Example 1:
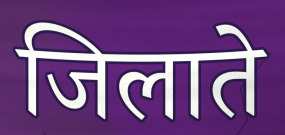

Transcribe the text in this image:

जिलाते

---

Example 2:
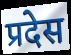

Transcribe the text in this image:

प्रदेस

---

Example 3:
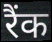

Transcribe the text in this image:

रैंक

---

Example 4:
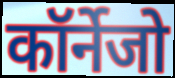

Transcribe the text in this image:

कॉर्नेजो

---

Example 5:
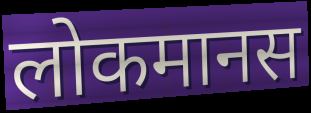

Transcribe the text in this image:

लोकमानस